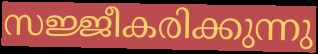
സജ്ജീകരിക്കുന്നു